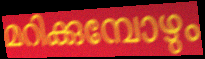
മറിക്കുമ്പോഴും